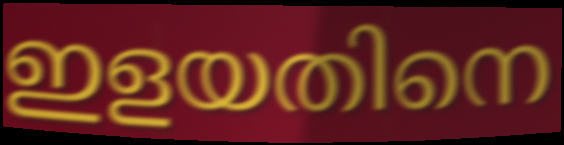
ഇളയതിനെ